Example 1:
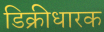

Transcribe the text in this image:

डिक्रीधारक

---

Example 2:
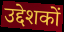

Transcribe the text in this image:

उद्देशकों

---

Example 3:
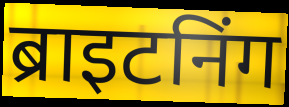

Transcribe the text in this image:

ब्राइटनिंग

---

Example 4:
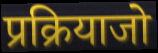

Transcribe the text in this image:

प्रक्रियाजो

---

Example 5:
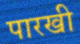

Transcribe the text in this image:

पारखी